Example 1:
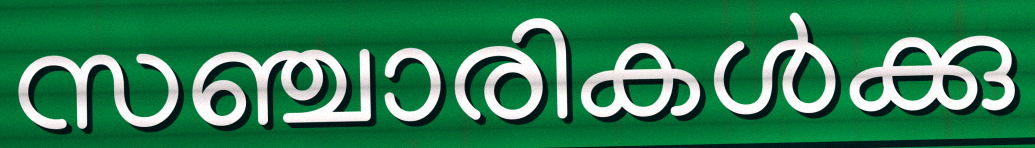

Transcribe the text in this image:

സഞ്ചാരികൾക്കു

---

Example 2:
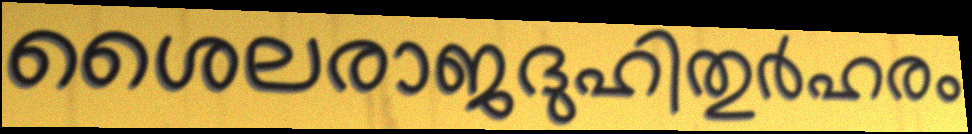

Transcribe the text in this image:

ശൈലരാജദുഹിതുർഹരം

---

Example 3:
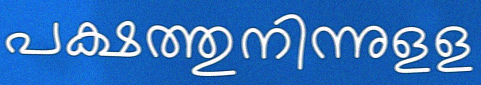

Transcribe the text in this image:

പക്ഷത്തുനിന്നുളള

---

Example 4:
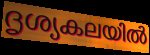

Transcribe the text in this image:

ദൃശ്യകലയിൽ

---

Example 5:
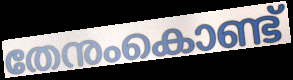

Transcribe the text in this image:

തേനുംകൊണ്ട്